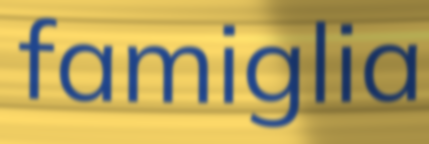
famiglia